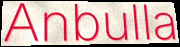
Anbulla